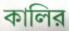
কালির